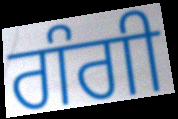
ਗੰਗੀ